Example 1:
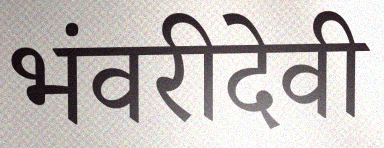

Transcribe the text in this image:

भंवरीदेवी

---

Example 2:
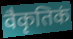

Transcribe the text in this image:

वैकृतिकं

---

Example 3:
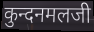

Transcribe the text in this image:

कुन्दनमलजी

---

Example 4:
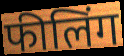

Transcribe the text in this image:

फीलिंग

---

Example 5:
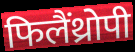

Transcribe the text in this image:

फिलैंथ्रोपी